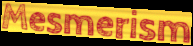
Mesmerism